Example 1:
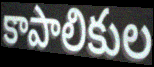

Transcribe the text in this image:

కాపాలికుల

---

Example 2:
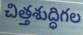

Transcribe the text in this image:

చిత్తశుద్ధిగల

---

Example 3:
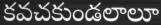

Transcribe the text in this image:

కవచకుండలాలూ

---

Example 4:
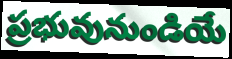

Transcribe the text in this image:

ప్రభువునుండియే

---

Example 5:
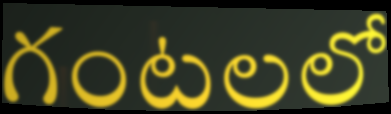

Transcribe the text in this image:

గంటలలో